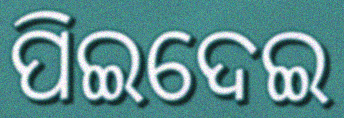
ପିଇଦେଇ